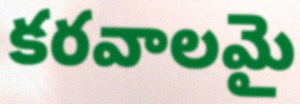
కరవాలమై